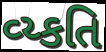
વ્ય્કતિ